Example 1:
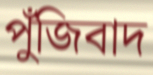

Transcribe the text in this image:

পুঁজিবাদ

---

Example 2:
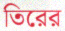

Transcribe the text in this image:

তিরের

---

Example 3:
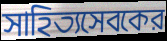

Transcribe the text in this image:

সাহিত্যসেবকের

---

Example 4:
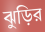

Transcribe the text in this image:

ঝুড়ির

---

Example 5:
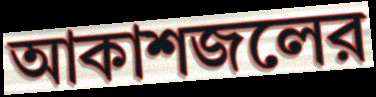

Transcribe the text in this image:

আকাশজলের